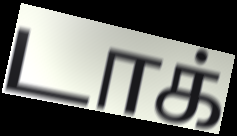
டாக்